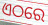
ଏଠରେ